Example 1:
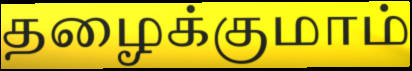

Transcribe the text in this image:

தழைக்குமாம்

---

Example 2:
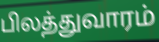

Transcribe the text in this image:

பிலத்துவாரம்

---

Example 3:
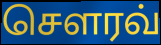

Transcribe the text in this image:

சௌரவ்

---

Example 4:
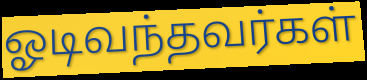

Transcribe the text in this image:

ஓடிவந்தவர்கள்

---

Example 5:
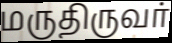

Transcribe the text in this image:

மருதிருவர்